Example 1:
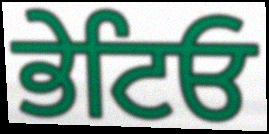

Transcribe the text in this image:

ਭੇਟਿਓ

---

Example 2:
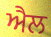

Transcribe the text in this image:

ਐਲ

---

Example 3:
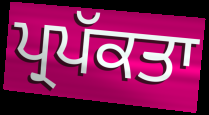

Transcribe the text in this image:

ਪ੍ਰਪੱਕਤਾ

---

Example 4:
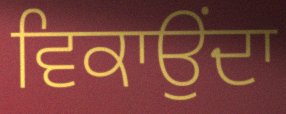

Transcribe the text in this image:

ਵਿਕਾਉੰਦਾ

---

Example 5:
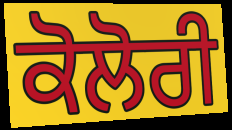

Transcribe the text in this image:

ਕੋਲੋਰੀ